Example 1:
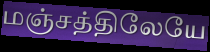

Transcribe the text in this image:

மஞ்சத்திலேயே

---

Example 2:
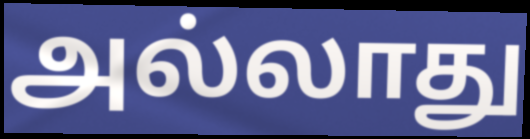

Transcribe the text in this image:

அல்லாது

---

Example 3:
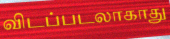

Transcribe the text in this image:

விடப்படலாகாது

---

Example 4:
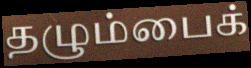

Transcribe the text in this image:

தழும்பைக்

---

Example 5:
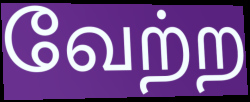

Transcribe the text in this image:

வேற்ற